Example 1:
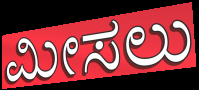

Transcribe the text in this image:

ಮೀಸಲು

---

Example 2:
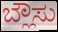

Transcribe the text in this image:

ಬ್ಲೌಸು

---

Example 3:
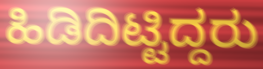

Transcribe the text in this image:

ಹಿಡಿದಿಟ್ಟಿದ್ದರು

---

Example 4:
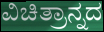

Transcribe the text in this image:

ವಿಚಿತ್ರಾನ್ನದ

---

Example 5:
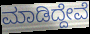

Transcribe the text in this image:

ಮಾಡಿದ್ದೇವೆ